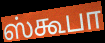
ஸ்கூபா